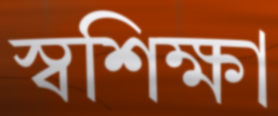
স্বশিক্ষা